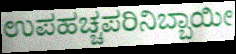
ಉಪಹಚ್ಚಪರಿನಿಬ್ಬಾಯೀ